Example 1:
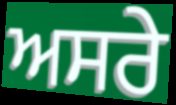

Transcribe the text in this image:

ਅਸਰੇ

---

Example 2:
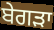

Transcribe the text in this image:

ਬੇਗੜਾ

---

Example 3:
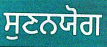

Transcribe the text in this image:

ਸੁਣਨਯੋਗ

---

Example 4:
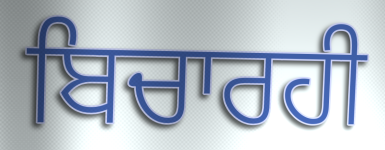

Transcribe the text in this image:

ਬਿਚਾਰਹੀ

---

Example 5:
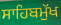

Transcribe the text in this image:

ਸਾਹਿਬਮੁੱਖ